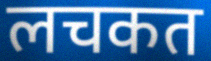
लचकत